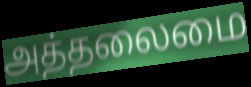
அத்தலைமை